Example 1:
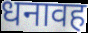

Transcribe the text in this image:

धनावह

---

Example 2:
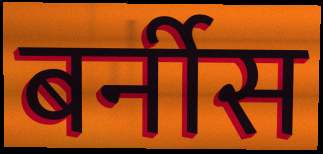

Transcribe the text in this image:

बर्नीस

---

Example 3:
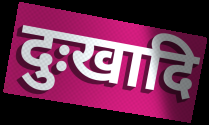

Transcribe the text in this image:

दुःखादि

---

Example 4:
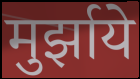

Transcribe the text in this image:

मुर्झाये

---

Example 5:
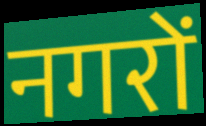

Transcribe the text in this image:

नगरों